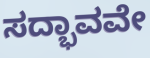
ಸದ್ಭಾವವೇ